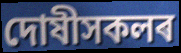
দোষীসকলৰ